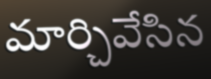
మార్చివేసిన